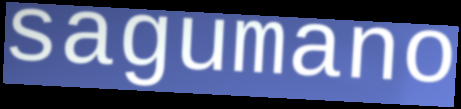
sagumano